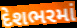
દેશભરમાં